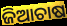
ଜିଆଚାଷ